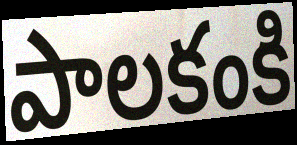
పాలకంకి